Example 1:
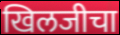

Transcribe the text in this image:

खिलजीचा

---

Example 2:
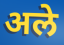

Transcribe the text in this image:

अले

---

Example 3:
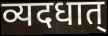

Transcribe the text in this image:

व्यदधात्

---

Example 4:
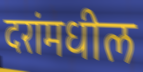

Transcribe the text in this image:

दरांमधील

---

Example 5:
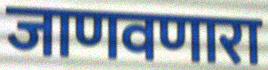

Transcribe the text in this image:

जाणवणारा